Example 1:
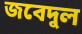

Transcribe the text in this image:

জবেদুল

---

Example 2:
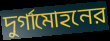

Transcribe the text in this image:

দুর্গামোহনের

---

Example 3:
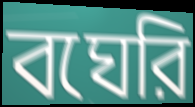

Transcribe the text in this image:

বঘেরি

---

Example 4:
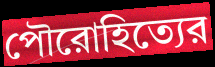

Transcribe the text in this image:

পৌরোহিত্যের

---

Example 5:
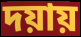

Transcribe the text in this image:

দয়ায়